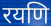
रयणि